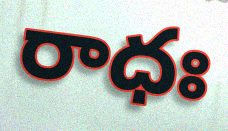
రాధః